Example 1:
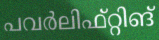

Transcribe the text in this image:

പവർലിഫ്റ്റിങ്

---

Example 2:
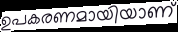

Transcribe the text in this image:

ഉപകരണമായിയാണ്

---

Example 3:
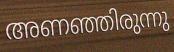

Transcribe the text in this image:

അണഞ്ഞിരുന്നു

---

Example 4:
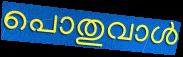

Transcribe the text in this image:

പൊതുവാൾ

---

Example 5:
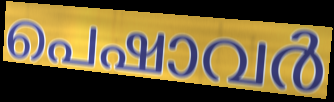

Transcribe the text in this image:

പെഷാവർ